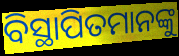
ବିସ୍ଥାପିତମାନଙ୍କୁ